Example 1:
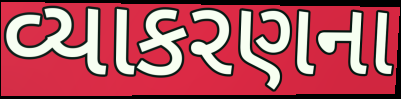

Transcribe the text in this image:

વ્યાકરણના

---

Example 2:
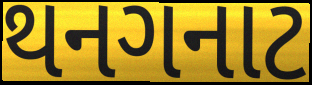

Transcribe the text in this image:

થનગનાટ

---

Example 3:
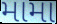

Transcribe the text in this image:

મામા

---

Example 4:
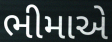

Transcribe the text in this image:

ભીમાએ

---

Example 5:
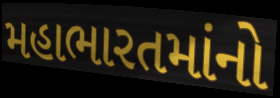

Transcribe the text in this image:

મહાભારતમાંનો